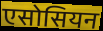
एसोसियन